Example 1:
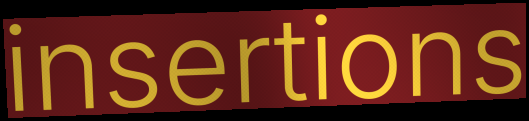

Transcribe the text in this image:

insertions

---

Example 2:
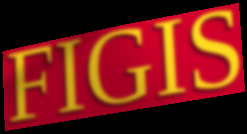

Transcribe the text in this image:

FIGIS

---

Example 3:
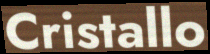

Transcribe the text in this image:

Cristallo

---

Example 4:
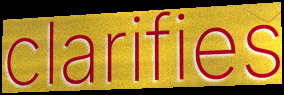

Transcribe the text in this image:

clarifies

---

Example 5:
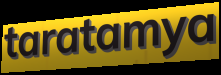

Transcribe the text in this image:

taratamya